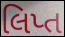
લિપ્ત